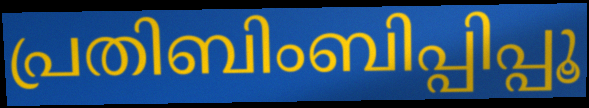
പ്രതിബിംബിപ്പിപ്പൂ